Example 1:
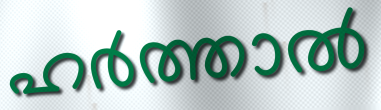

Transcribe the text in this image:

ഹർത്താൽ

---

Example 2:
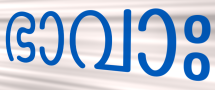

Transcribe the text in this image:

ഭാവാഃ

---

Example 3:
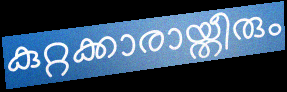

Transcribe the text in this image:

കുറ്റക്കാരായ്തീരും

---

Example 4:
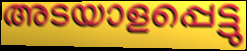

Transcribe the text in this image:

അടയാളപ്പെട്ടു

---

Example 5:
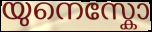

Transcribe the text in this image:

യുനെസ്കോ